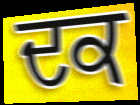
ਦਕ